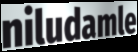
niludamle